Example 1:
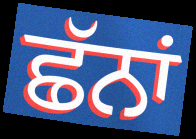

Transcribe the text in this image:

ਛੱਨਾਂ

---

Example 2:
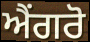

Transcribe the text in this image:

ਐਂਗਰੋ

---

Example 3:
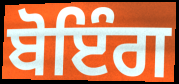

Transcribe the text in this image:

ਬੋਇੰਗ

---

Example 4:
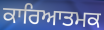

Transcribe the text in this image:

ਕਾਰਿਆਤਮਕ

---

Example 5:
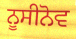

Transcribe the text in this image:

ਨੂਸੀਨੋਵ